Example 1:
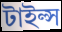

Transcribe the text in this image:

টাইল্স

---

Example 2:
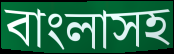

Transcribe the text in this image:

বাংলাসহ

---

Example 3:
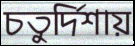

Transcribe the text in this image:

চতুর্দিশায়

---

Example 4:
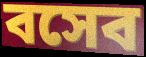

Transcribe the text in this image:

বসেব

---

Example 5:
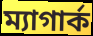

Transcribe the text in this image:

ম্যাগার্ক